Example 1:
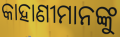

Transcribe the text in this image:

କାହାଣୀମାନଙ୍କୁ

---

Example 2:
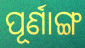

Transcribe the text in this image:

ପୂର୍ଣାଙ୍ଗ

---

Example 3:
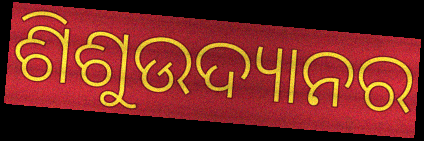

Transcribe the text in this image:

ଶିଶୁଉଦ୍ୟାନର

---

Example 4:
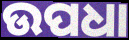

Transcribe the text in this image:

ଉପଧା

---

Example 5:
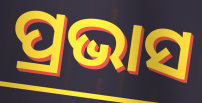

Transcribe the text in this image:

ପ୍ରଭାସ